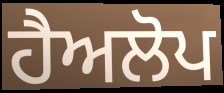
ਹੈਅਲੋਪ